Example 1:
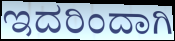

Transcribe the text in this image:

ಇದರಿಂದಾಗಿ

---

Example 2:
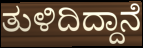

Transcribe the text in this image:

ತುಳಿದಿದ್ದಾನೆ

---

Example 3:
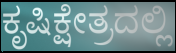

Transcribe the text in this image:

ಕೃಷಿಕ್ಷೇತ್ರದಲ್ಲಿ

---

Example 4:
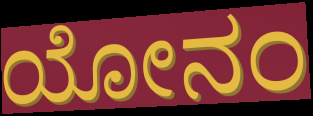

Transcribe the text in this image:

ಯೋನಂ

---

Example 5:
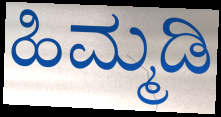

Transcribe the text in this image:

ಹಿಮ್ಮಡಿ